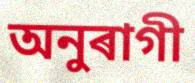
অনুৰাগী